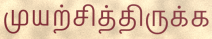
முயற்சித்திருக்க